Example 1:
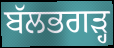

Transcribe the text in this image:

ਬੱਲਭਗੜ੍ਹ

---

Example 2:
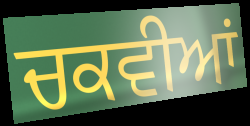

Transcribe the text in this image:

ਚਕਵੀਆਂ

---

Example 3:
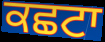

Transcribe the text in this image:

ਕਛਟਾ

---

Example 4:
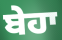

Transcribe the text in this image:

ਬੇਹਾ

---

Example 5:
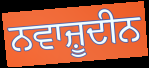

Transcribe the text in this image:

ਨਵਾਜ਼ੂਦੀਨ